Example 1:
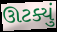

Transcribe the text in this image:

ઊટક્યું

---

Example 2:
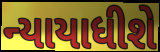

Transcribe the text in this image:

ન્યાયાધીશે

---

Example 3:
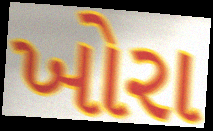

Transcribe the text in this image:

ખોરા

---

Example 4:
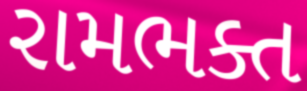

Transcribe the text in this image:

રામભક્ત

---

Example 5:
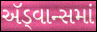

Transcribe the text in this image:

ઍડ્વાન્સમાં